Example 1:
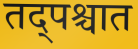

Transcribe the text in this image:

तद्पश्चात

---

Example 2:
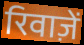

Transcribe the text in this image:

रिवाज़ें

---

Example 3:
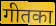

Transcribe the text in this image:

गीतका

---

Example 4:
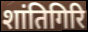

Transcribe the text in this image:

शांतिगिरि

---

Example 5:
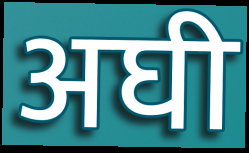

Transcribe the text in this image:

अघी